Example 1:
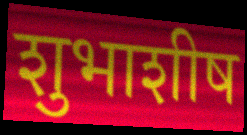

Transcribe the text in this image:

शुभाशीष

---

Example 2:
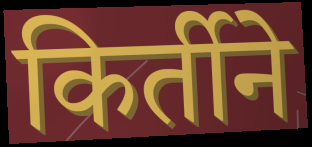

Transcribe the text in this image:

किर्तीने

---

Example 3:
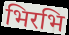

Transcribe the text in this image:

भिरभि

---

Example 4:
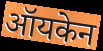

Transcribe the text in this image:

ऑयकेन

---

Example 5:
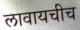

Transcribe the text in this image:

लावायचीच